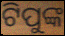
ଟିପୁଙ୍କ